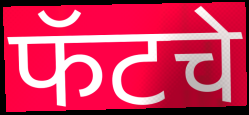
फॅटचे